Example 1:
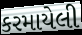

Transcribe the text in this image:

કરમાયેલી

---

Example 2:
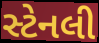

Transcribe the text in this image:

સ્ટેનલી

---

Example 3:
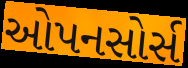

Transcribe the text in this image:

ઓપનસોર્સ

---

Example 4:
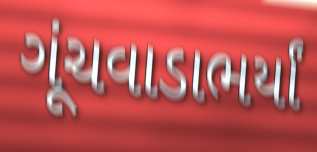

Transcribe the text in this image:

ગૂંચવાડાભર્યાં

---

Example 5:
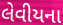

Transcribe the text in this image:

લેવીયના